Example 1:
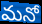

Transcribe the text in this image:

మనో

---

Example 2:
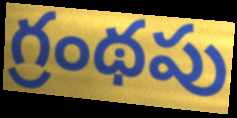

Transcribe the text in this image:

గ్రంథపు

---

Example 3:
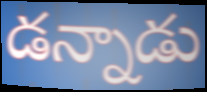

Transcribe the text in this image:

డన్నాడు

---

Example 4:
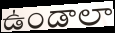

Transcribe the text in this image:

ఉండాలా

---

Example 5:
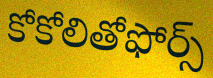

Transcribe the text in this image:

కోకోలితోఫోర్స్